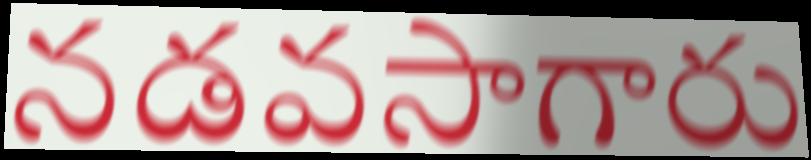
నడవసాగారు